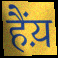
हैंय़